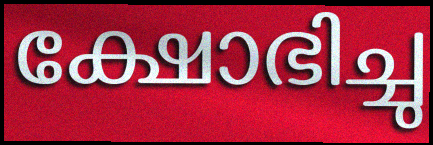
ക്ഷോഭിച്ചു